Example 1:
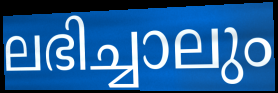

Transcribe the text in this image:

ലഭിച്ചാലും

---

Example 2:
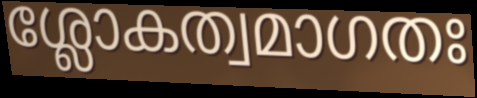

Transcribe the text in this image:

ശ്ലോകത്വമാഗതഃ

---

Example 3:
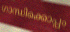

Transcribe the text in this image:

ഗാന്ധിക്കൊപ്പം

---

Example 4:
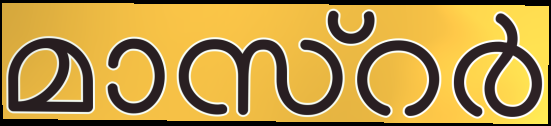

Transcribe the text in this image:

മാസ്റർ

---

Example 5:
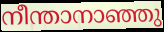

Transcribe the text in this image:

നീന്താനാഞ്ഞു